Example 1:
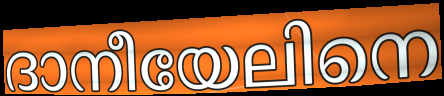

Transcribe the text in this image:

ദാനീയേലിനെ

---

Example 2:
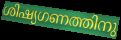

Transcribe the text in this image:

ശിഷ്യഗണത്തിനു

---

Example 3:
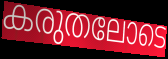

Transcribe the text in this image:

കരുതലോടെ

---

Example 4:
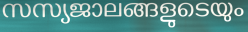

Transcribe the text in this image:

സസ്യജാലങ്ങളുടെയും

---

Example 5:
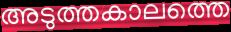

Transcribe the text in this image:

അടുത്തകാലത്തെ